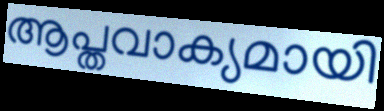
ആപ്തവാക്യമായി